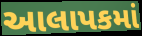
આલાપકમાં